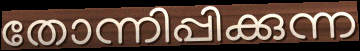
തോന്നിപ്പിക്കുന്ന